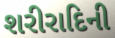
શરીરાદિની